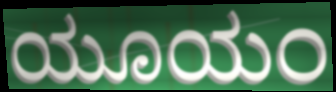
ಯೂಯಂ